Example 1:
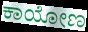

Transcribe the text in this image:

ಕಾಯೋಣ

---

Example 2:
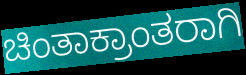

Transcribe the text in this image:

ಚಿಂತಾಕ್ರಾಂತರಾಗಿ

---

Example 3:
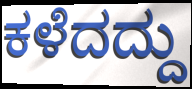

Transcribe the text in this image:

ಕಳೆದದ್ದು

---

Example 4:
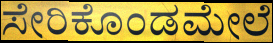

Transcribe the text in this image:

ಸೇರಿಕೊಂಡಮೇಲೆ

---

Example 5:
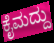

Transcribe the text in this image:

ಕೈಮದ್ದು